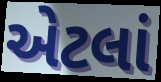
એટલાં